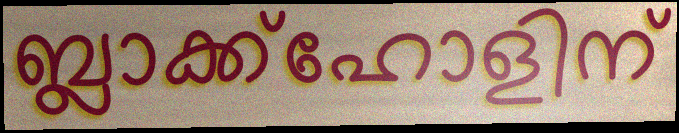
ബ്ലാക്ക്ഹോളിന്